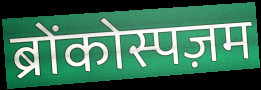
ब्रोंकोस्पज़म